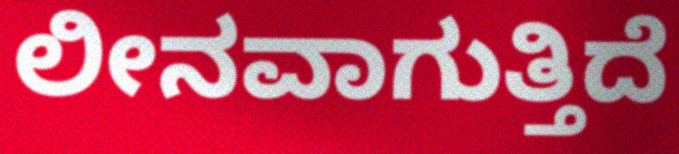
ಲೀನವಾಗುತ್ತಿದೆ